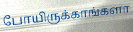
போயிருக்காங்களா